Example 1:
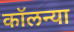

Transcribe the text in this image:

कॉलन्या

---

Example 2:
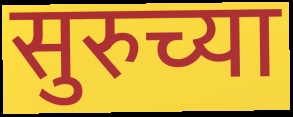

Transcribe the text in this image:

सुरुच्या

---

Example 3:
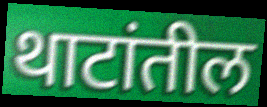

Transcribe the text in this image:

थाटांतील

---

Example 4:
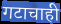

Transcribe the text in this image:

गटाचाही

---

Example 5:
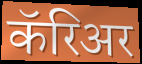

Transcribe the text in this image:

कॅरिअर